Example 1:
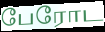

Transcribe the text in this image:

பேரோட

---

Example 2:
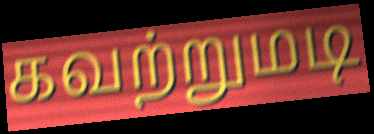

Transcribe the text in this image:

கவற்றுமடி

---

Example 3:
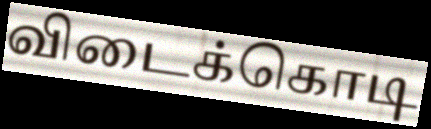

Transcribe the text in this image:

விடைக்கொடி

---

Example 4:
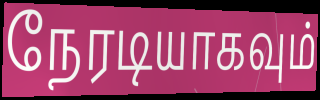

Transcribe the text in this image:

நேரடியாகவும்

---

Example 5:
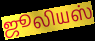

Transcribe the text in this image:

ஜூலியஸ்